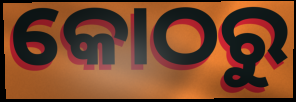
କୋଠରୁ